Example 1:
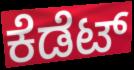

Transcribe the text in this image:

ಕೆಡೆಟ್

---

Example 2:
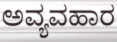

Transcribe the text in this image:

ಅವ್ಯವಹಾರ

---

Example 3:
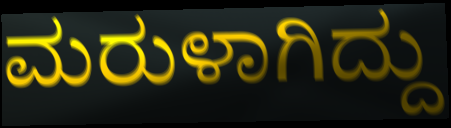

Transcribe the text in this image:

ಮರುಳಾಗಿದ್ದು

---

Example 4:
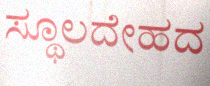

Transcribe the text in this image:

ಸ್ಥೂಲದೇಹದ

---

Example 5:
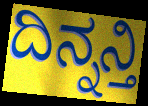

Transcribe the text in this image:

ದಿನ್ನನ್ತಿ